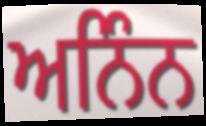
ਅਨਿੰਨ